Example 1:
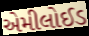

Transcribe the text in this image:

એમીલોઈડ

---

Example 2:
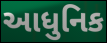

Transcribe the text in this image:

આધુનિક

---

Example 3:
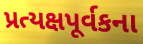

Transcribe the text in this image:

પ્રત્યક્ષપૂર્વકના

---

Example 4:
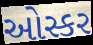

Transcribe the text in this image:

ઓસ્કર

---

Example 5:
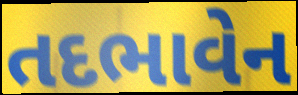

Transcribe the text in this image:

તદભાવેન